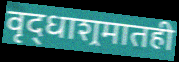
वृद्धाश्रमातही